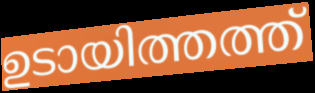
ഉടായിത്തത്ത്